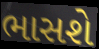
ભાસશે